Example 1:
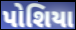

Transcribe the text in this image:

પોશિયા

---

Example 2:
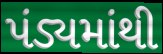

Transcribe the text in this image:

પંડ્યમાંથી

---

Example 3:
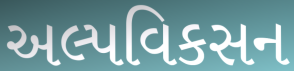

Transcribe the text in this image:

અલ્પવિકસન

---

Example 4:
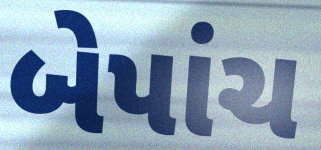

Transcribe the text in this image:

બેપાંચ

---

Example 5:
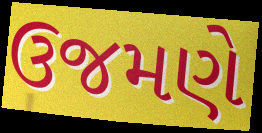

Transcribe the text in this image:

ઉજમણે